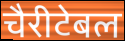
चैरीटेबल